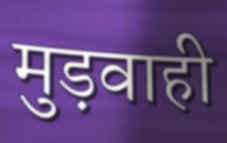
मुड़वाही